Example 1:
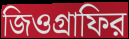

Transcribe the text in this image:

জিওগ্রাফির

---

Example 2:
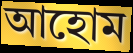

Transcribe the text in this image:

আহোম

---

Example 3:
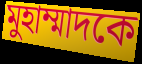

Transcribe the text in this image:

মুহাম্মাদকে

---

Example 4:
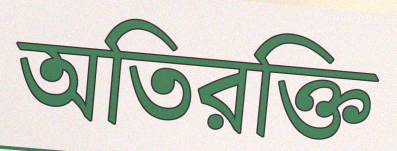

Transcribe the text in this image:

অতিরক্তি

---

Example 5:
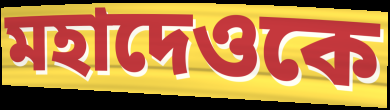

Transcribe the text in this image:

মহাদেওকে